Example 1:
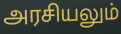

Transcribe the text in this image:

அரசியலும்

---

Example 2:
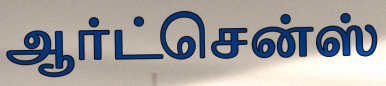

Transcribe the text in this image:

ஆர்ட்சென்ஸ்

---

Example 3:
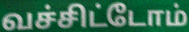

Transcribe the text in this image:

வச்சிட்டோம்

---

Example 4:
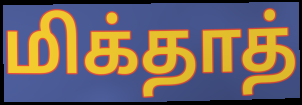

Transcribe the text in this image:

மிக்தாத்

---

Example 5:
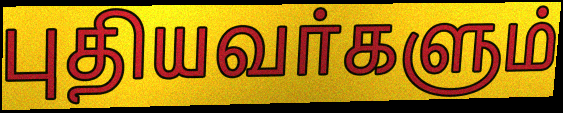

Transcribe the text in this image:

புதியவர்களும்